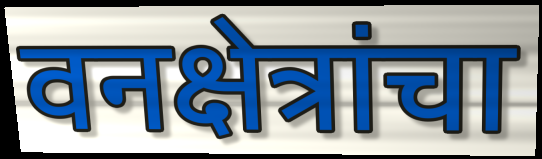
वनक्षेत्रांचा